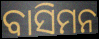
ବାସିମନ